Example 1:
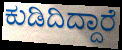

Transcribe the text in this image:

ಕುಡಿದಿದ್ದಾರೆ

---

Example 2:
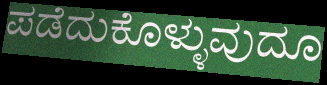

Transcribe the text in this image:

ಪಡೆದುಕೊಳ್ಳುವುದೂ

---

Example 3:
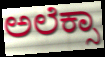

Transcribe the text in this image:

ಅಲೆಕ್ಸಾ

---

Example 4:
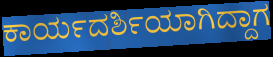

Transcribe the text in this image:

ಕಾರ್ಯದರ್ಶಿಯಾಗಿದ್ದಾಗ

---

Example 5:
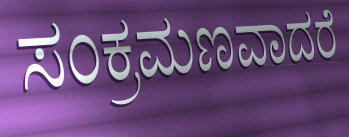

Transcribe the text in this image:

ಸಂಕ್ರಮಣವಾದರೆ